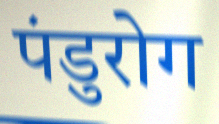
पंडुरोग